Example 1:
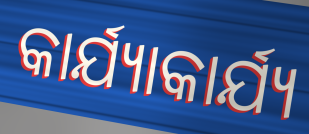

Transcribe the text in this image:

କାର୍ଯ୍ୟାକାର୍ଯ୍ୟ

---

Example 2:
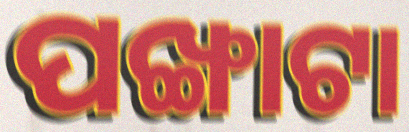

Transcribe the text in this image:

ପଙ୍ଖାଟା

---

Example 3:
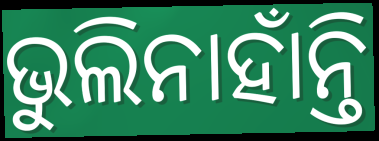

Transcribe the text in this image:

ଭୁଲିନାହାଁନ୍ତି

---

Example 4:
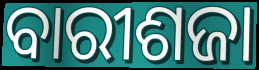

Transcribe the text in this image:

ବାରୀଶଜା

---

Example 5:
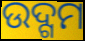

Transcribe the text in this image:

ଉଦ୍ଗମ